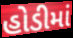
હોડીમાં